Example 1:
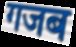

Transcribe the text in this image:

गजब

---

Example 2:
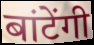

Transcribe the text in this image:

बांटेंगी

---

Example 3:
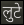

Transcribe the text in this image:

लुटे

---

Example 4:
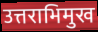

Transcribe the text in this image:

उत्तराभिमुख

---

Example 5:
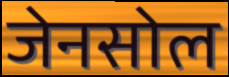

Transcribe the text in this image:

जेनसोल